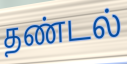
தண்டல்